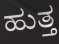
ಹುತ್ತ